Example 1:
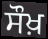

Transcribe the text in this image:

ਸੌਖ਼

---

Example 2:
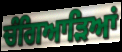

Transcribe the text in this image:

ਚੰਗਿਆੜਿਆਂ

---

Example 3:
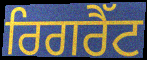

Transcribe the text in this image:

ਰਿਗਰੈੱਟ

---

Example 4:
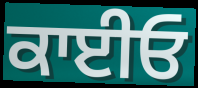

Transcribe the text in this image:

ਕਾਈਓ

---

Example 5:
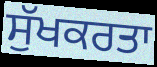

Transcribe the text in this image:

ਸੁੱਖਕਰਤਾ